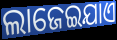
ଲାଜେଇଯାଏ